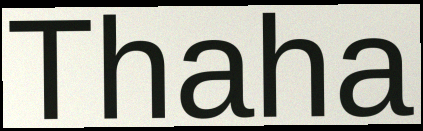
Thaha